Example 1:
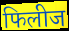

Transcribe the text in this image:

फिलीज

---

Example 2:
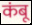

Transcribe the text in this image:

कंबू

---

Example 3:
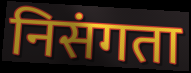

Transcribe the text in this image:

निसंगता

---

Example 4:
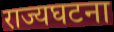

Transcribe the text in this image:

राज्यघटना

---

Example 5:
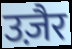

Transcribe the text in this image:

उज़ैर